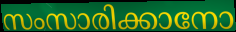
സംസാരിക്കാനോ